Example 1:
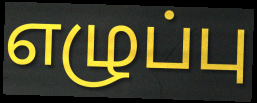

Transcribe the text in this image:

எழுப்பு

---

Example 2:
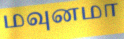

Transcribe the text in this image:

மவுனமா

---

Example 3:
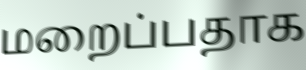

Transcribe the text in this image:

மறைப்பதாக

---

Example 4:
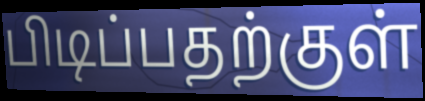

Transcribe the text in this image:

பிடிப்பதற்குள்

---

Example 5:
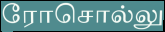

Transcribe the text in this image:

ரோசொல்லு